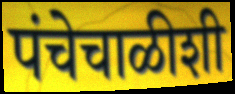
पंचेचाळीशी